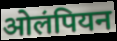
ओलंपियन